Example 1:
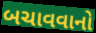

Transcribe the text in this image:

બચાવવાનો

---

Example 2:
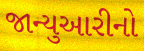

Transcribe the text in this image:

જાન્યુઆરીનો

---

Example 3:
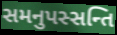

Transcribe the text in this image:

સમનુપસ્સન્તિ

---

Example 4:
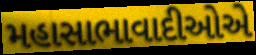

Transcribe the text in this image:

મહાસાભાવાદીઓએ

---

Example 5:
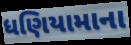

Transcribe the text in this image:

ધણિયામાના